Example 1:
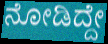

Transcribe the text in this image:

ನೋಡಿದ್ದೇ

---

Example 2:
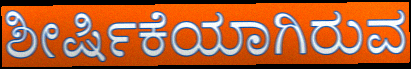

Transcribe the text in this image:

ಶೀರ್ಷಿಕೆಯಾಗಿರುವ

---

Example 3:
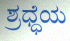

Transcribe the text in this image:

ಶ್ರಧ್ಧೆಯ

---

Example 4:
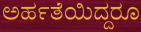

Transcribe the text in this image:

ಅರ್ಹತೆಯಿದ್ದರೂ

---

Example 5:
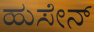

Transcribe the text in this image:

ಹುಸೇನ್